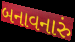
બનાવનારું